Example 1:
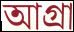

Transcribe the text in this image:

আগ্ৰা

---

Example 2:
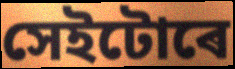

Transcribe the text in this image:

সেইটোৰে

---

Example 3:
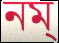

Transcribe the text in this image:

নম্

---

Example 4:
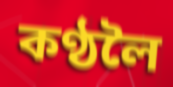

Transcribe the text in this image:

কণ্ঠলৈ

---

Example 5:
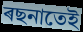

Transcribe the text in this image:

ৰছনাতেই